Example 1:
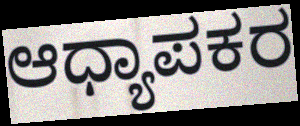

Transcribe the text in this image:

ಆಧ್ಯಾಪಕರ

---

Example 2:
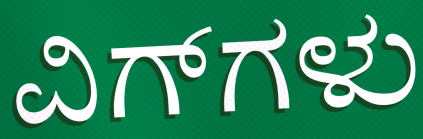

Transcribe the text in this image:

ವಿಗ್‌ಗಳು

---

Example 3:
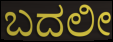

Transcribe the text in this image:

ಬದಲೀ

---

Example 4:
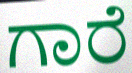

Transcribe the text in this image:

ಗಾರೆ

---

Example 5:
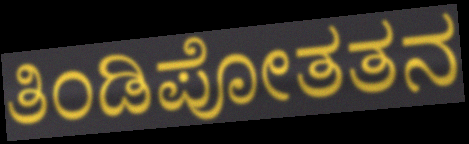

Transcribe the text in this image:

ತಿಂಡಿಪೋತತನ